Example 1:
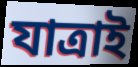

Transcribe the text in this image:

যাত্ৰাই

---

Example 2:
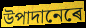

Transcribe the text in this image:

উপাদানেৰে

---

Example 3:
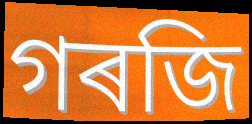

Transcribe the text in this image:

গৰজি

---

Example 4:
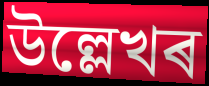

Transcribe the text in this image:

উল্লেখৰ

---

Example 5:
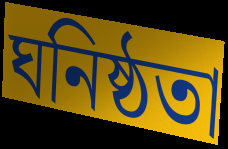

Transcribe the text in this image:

ঘনিষ্ঠতা